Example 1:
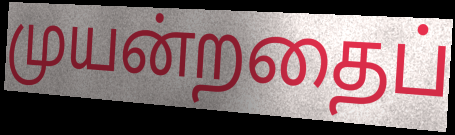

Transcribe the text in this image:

முயன்றதைப்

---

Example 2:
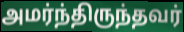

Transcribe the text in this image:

அமர்ந்திருந்தவர்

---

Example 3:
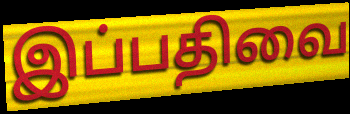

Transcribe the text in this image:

இப்பதிவை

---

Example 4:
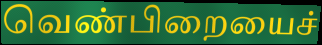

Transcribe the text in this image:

வெண்பிறையைச்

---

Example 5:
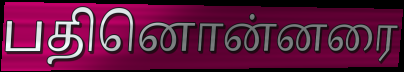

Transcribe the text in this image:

பதினொன்னரை